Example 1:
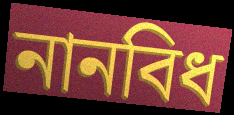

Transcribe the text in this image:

নানবিধ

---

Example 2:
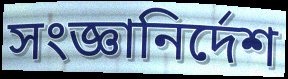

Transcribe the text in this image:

সংজ্ঞানির্দেশ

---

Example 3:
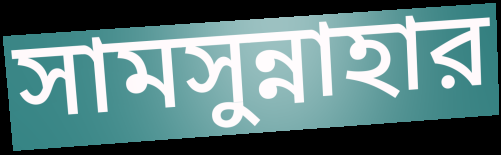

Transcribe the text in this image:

সামসুন্নাহার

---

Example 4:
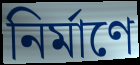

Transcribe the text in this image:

নির্মাণে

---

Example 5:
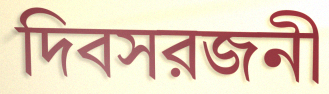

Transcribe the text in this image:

দিবসরজনী